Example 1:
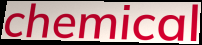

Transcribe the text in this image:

chemical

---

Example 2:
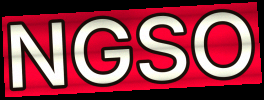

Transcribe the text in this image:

NGSO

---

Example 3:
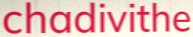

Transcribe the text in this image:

chadivithe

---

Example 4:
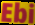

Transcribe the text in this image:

Ebi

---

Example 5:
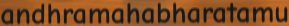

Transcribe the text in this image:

andhramahabharatamu